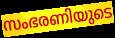
സംഭരണിയുടെ